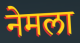
नेमला